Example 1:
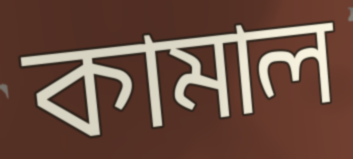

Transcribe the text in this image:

কামাল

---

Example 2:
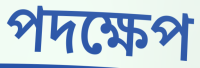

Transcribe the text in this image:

পদক্ষেপ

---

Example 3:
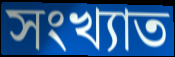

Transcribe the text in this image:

সংখ্যাত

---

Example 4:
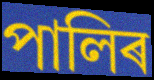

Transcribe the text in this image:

পালিৰ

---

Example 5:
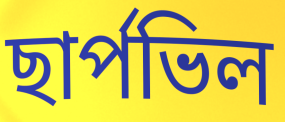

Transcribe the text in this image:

ছাৰ্পভিল